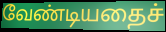
வேண்டியதைச்